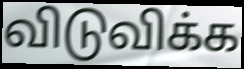
விடுவிக்க